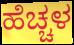
ಹೆಚ್ಚಳ